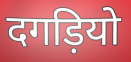
दगड़ियो